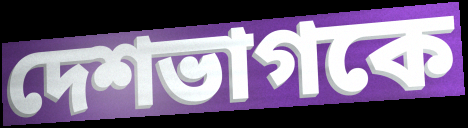
দেশভাগকে